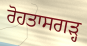
ਰੋਹਤਾਸਗੜ੍ਹ